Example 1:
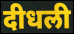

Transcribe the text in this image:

दीधली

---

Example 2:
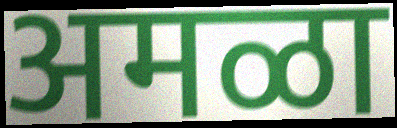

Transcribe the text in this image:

अमळा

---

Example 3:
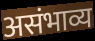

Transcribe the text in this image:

असंभाव्य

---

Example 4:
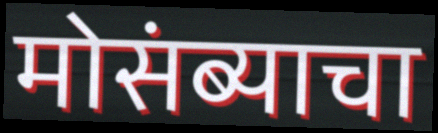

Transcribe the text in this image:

मोसंब्याचा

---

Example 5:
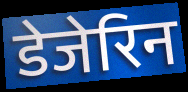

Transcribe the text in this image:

डेजेरिन